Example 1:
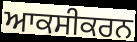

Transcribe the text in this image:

ਆਕਸੀਕਰਨ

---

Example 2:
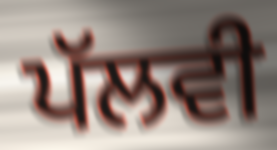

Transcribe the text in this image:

ਪੱਲਵੀ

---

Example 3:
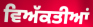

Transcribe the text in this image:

ਵਿਅੱਕਤੀਆਂ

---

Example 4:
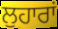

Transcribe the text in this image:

ਲੁਹਾਰਾਂ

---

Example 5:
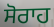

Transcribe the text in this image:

ਸੋਰਾਹ